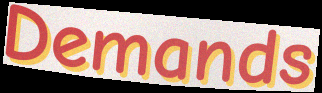
Demands